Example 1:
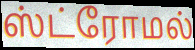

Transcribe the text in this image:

ஸ்ட்ரோமல்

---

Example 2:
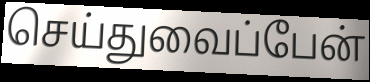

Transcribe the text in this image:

செய்துவைப்பேன்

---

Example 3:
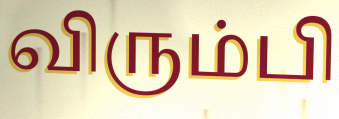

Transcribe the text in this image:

விரும்பி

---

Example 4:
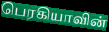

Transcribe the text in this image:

பெரகியாவின்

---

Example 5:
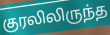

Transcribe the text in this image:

குரலிலிருந்த